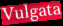
Vulgata